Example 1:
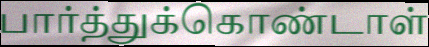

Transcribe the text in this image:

பார்த்துக்கொண்டாள்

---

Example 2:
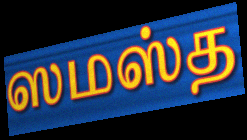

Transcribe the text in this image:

ஸமஸ்த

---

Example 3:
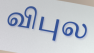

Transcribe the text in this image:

விபுல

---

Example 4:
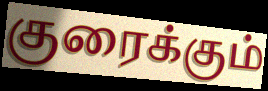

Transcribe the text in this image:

குரைக்கும்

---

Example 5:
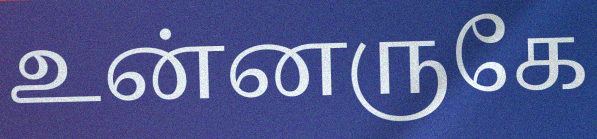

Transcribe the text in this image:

உன்னருகே